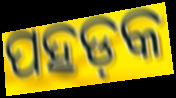
ପହଡ଼କ